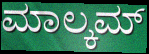
ಮಾಲ್ಕಮ್